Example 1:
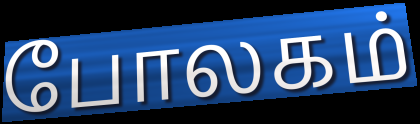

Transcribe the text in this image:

போலகம்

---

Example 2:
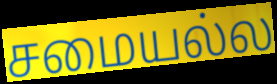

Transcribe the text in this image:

சமையல்ல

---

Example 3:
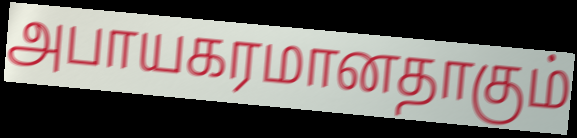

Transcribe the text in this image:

அபாயகரமானதாகும்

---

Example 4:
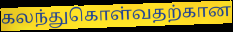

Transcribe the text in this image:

கலந்துகொள்வதற்கான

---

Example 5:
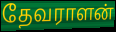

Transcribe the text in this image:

தேவராளன்